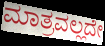
ಮಾತ್ರವಲ್ಲದೇ